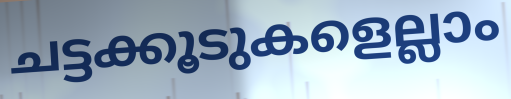
ചട്ടക്കൂടുകളെല്ലാം